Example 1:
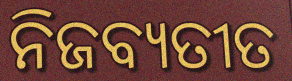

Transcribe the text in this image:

ନିଜବ୍ୟତୀତ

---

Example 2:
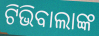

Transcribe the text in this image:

ଟିଭିବାଲାଙ୍କ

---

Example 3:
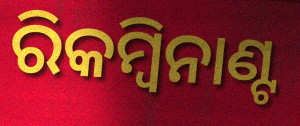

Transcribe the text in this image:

ରିକମ୍ବିନାଣ୍ଟ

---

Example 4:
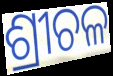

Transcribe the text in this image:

ଶ୍ରୀଚଳ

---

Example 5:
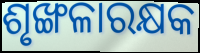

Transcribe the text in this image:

ଶୃଙ୍ଖଳାରକ୍ଷକ